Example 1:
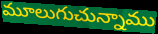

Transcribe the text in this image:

మూలుగుచున్నాము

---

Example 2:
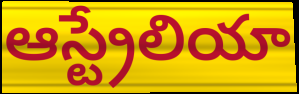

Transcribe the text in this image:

ఆస్ట్రేలియా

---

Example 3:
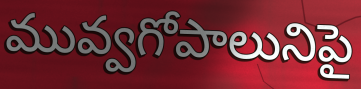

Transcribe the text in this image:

మువ్వగోపాలునిపై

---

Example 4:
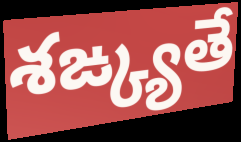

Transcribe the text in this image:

శఙ్క్యతే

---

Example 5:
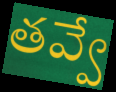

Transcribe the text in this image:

తవ్వే